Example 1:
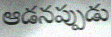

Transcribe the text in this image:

ఆడనప్పుడు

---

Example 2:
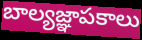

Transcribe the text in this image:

బాల్యజ్ఞాపకాలు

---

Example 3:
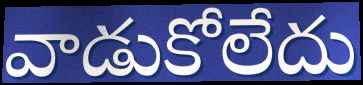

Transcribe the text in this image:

వాడుకోలేదు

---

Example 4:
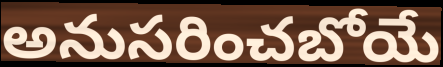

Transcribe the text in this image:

అనుసరించబోయే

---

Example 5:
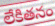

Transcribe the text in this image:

లేకితనం